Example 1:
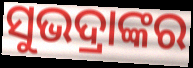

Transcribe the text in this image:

ସୁଭଦ୍ରାଙ୍କର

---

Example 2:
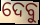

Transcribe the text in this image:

ଦେବୁ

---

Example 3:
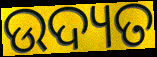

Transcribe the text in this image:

ଉଦ୍ୟତ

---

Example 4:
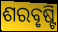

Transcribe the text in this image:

ଶରବୃଷ୍ଟି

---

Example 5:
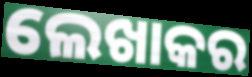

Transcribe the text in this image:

ଲେଖାକର